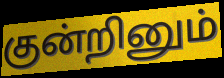
குன்றினும்